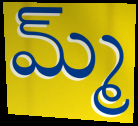
మ్మ్